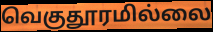
வெகுதூரமில்லை